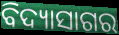
ବିଦ୍ୟାସାଗର